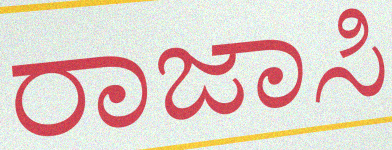
ರಾಜಾಸಿ